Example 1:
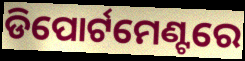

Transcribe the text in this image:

ଡିପୋର୍ଟମେଣ୍ଟରେ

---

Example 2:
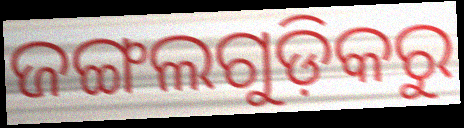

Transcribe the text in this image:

ଜଙ୍ଗଲଗୁଡ଼ିକରୁ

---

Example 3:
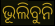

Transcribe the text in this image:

ଭୂଲିବୁନି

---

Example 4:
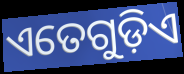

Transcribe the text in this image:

ଏତେଗୁଡ଼ିଏ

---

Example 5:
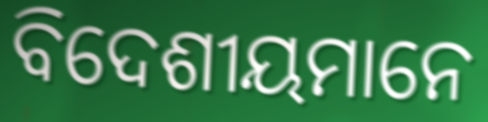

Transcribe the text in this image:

ବିଦେଶୀୟମାନେ